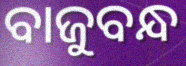
ବାଜୁବନ୍ଧ